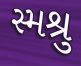
સ્મશ્રુ